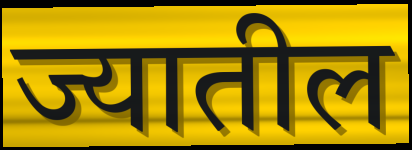
ज्यातील